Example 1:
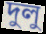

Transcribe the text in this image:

দুলু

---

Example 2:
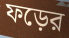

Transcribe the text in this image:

ফড়ের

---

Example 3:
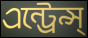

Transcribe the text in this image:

এন্ট্রেন্স্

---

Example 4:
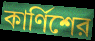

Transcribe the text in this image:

কার্ণিশের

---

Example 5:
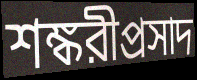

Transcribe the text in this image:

শঙ্করীপ্রসাদ